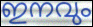
ഇനവും